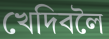
খেদিবলৈ